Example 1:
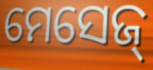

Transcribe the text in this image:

ମେସେଜ୍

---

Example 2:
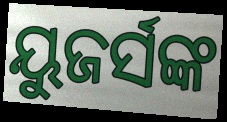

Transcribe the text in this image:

ୟୁଜର୍ସଙ୍କ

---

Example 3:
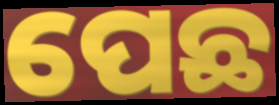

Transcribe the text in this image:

ପେଛ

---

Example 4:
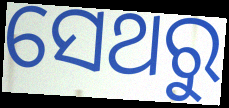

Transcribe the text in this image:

ସେଥରୁ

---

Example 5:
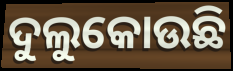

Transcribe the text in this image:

ଦୁଲୁକୋଉଛି